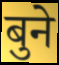
बुने